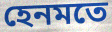
হেনমতে